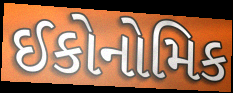
ઈકોનોમિક